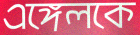
এঙ্গেলকে